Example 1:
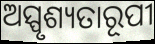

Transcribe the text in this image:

ଅସ୍ପୃଶ୍ୟତାରୂପୀ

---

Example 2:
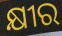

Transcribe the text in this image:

କ୍ଷୀର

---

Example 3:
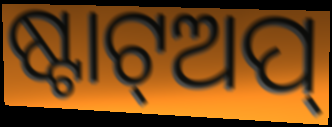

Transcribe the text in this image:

ଷ୍ଟାଟ୍ଅପ୍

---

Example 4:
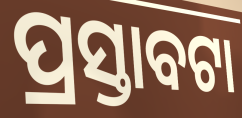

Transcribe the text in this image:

ପ୍ରସ୍ତାବଟା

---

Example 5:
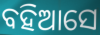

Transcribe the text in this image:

ବହିଆସେ